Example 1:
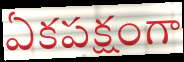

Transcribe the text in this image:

ఏకపక్షంగా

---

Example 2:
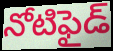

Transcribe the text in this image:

నోటిఫైడ్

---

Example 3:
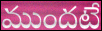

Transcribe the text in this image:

ముందటే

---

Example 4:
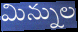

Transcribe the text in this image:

మిన్నుల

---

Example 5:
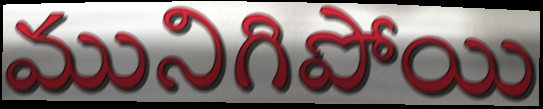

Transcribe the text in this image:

మునిగిపోయి